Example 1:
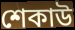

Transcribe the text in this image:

শেকাউ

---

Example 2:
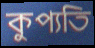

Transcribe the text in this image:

কুপ্যতি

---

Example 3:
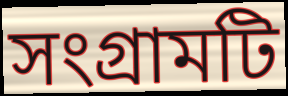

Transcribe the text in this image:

সংগ্রামটি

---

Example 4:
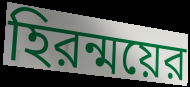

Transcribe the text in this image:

হিরন্ময়ের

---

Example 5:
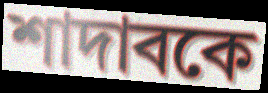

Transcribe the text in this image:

শাদাবকে